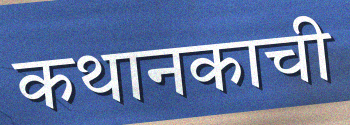
कथानकाची